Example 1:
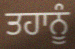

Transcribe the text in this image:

ਤਹਾਨੂੰ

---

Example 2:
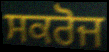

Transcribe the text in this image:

ਸਕਰੋਜ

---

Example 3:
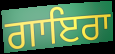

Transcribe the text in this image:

ਗਾਇਰਾ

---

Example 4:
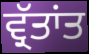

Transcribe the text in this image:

ਵ੍ਰੱਤਾਂਤ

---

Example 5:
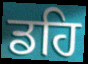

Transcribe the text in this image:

ਡਹਿ